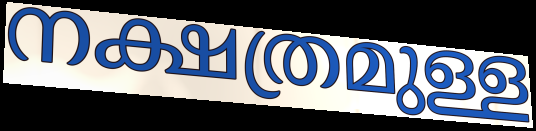
നക്ഷത്രമുള്ള